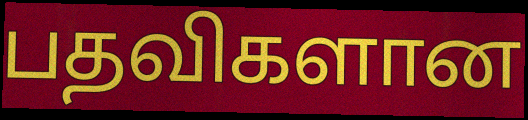
பதவிகளான